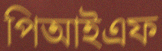
পিআইএফ